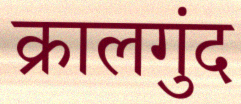
क्रालगुंद